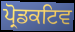
ਪ੍ਰੋਡਕਟਿਵ